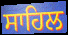
ਸਾਹਿਲ